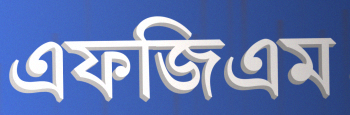
এফজিএম